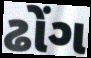
ઢોંગ